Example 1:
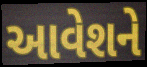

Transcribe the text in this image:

આવેશને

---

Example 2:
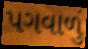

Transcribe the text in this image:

પગવાળું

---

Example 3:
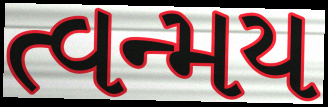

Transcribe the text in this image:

ત્વન્મય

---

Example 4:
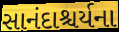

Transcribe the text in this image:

સાનંદાશ્ચર્યના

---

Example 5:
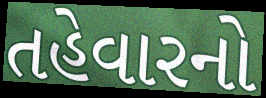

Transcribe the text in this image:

તહેવારનો